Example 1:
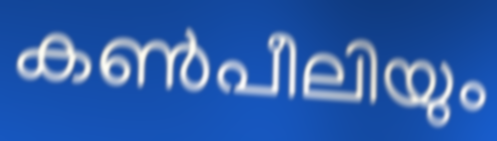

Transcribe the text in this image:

കൺപീലിയും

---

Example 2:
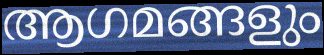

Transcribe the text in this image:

ആഗമങ്ങളും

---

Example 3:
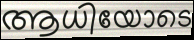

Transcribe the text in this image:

ആധിയോടെ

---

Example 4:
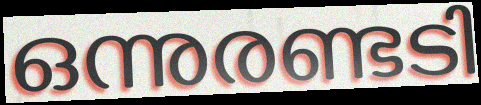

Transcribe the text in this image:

ഒന്നുരണ്ടടി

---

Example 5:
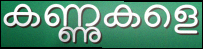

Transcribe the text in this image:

കണ്ണുകളെ